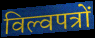
विल्वपत्रों